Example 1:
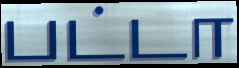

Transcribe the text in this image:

பட்டா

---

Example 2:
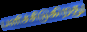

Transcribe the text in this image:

பளிச்சிடுகிறது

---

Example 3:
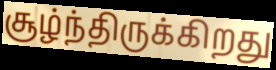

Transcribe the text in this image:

சூழ்ந்திருக்கிறது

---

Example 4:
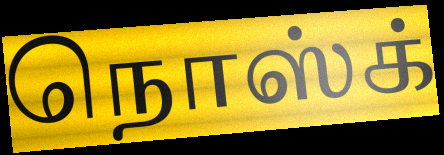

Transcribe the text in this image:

நொஸ்க்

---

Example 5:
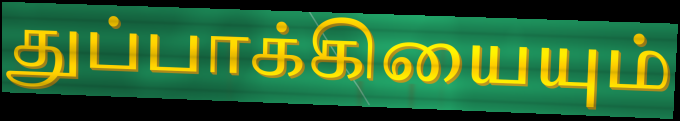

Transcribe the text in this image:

துப்பாக்கியையும்